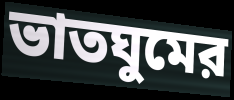
ভাতঘুমের